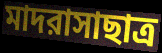
মাদরাসাছাত্র